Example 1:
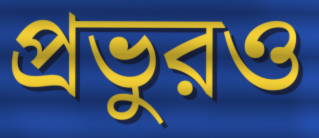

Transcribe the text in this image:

প্রভুরও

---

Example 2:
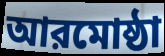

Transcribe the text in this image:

আরমোষ্ঠা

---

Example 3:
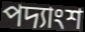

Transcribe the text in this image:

পদ্যাংশ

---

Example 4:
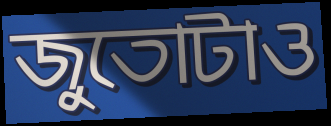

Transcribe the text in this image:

জুতোটাও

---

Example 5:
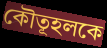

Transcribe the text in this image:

কৌতূহলকে